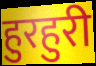
हुरहुरी